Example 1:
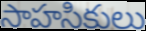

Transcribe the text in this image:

సాహసికులు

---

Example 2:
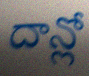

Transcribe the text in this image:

దాన్లో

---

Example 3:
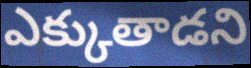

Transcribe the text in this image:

ఎక్కుతాడని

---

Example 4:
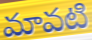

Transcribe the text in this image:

మావటి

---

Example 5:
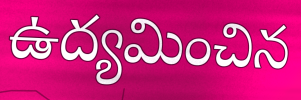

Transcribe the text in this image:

ఉద్యమించిన